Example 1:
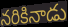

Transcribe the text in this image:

నరికినాడు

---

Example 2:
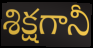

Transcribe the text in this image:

శిక్షగానీ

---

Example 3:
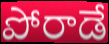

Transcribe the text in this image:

పోరాడే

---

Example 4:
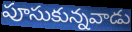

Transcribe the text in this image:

పూసుకున్నవాడు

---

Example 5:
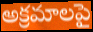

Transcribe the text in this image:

అక్రమాలపై